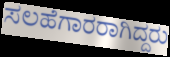
ಸಲಹೆಗಾರರಾಗಿದ್ದರು